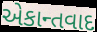
એકાન્તવાદ